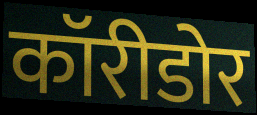
कॉरीडोर